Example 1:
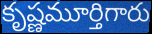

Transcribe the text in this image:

కృష్ణమూర్తిగారు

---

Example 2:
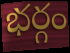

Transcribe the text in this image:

భర్గం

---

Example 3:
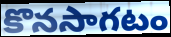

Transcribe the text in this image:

కొనసాగటం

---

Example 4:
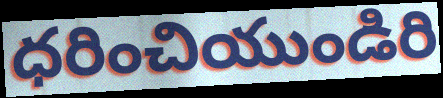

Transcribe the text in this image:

ధరించియుండిరి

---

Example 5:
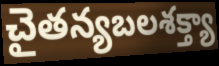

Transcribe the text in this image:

చైతన్యబలశక్త్యా